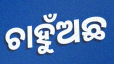
ଚାହୁଁଅଛ